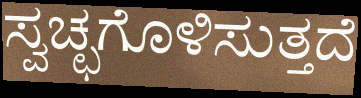
ಸ್ವಚ್ಛಗೊಳಿಸುತ್ತದೆ